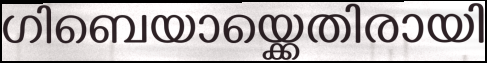
ഗിബെയായ്ക്കെതിരായി